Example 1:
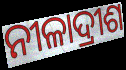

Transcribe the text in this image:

ନୀଳାଦ୍ରୀଶ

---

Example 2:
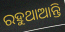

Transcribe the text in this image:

ରହୁଥାଆନ୍ତି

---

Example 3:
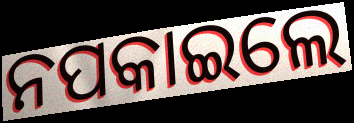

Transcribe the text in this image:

ନପକାଇଲେ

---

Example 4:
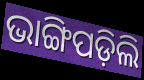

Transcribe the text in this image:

ଭାଙ୍ଗିପଡ଼ିଲି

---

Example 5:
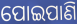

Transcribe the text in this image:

ପୋଇପାଣି